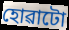
হোৱাটো